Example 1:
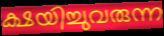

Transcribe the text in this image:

ക്ഷയിച്ചുവരുന്ന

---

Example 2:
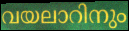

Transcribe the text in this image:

വയലാറിനും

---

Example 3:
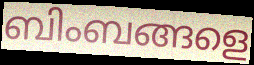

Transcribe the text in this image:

ബിംബങ്ങളെ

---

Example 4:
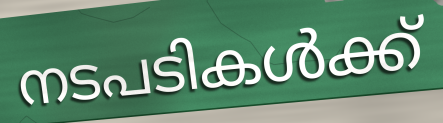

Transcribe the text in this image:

നടപടികൾക്ക്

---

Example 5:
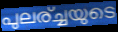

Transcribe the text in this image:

പുലര്ച്ചയുടെ